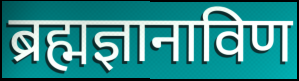
ब्रह्मज्ञानाविण